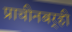
प्राचीनबर्ही